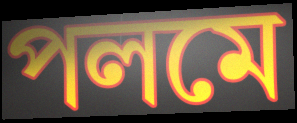
পলমে